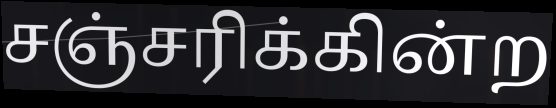
சஞ்சரிக்கின்ற